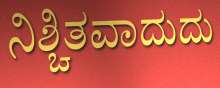
ನಿಶ್ಚಿತವಾದುದು